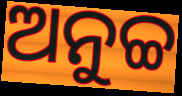
ଅନୁଚ୍ଚ